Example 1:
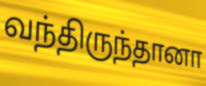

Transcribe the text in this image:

வந்திருந்தானா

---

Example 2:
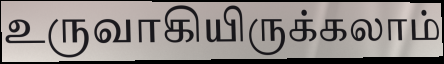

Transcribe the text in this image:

உருவாகியிருக்கலாம்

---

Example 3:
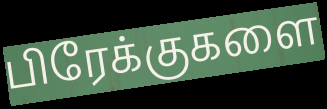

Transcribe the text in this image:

பிரேக்குகளை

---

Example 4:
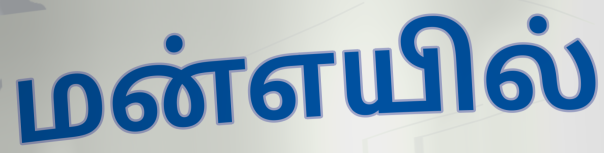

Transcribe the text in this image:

மன்எயில்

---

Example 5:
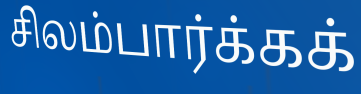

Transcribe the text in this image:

சிலம்பார்க்கக்